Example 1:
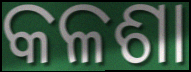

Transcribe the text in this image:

କଳଶା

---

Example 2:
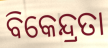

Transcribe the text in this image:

ବିକେନ୍ଦ୍ରତା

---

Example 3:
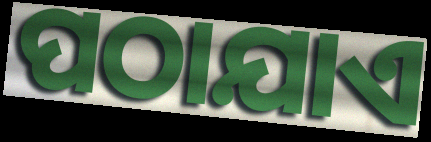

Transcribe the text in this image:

ପଠାଯାଏ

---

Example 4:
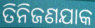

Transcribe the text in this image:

ତିନିଜଣଯାକ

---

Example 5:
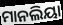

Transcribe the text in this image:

ମାନଲିୟା